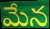
మేన